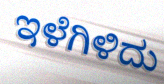
ಇಳೆಗಿಳಿದು